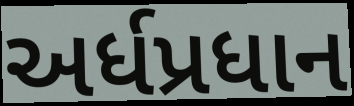
અર્ધપ્રધાન